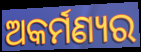
ଅକର୍ମଣ୍ୟର